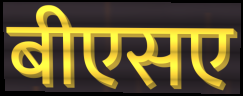
बीएसए